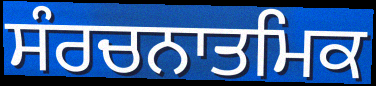
ਸੰਰਚਨਾਤਮਿਕ